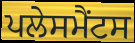
ਪਲੇਸਮੈਂਟਸ